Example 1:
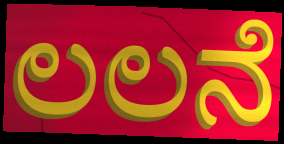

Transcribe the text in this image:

ಲಲನೆ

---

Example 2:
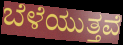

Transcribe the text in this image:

ಬೆಳೆಯುತ್ತವೆ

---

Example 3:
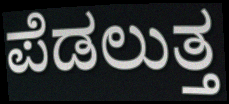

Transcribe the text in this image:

ಪೆಡಲುತ್ತ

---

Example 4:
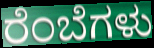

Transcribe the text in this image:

ರೆಂಬೆಗಳು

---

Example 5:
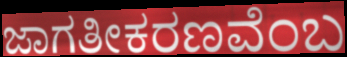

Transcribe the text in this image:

ಜಾಗತೀಕರಣವೆಂಬ